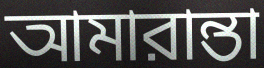
আমারান্তা